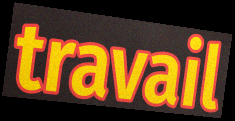
travail